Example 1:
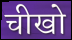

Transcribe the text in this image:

चीखो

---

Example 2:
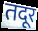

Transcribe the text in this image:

तदूर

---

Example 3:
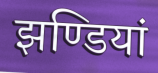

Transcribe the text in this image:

झण्डियां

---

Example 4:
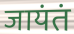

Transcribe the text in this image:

जायंतं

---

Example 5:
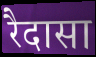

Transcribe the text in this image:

रैदासा